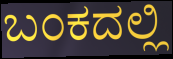
ಬಂಕದಲ್ಲಿ